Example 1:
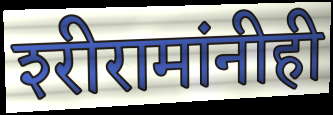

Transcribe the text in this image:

श्रीरामांनीही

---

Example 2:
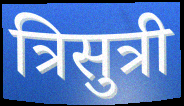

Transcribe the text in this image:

त्रिसुत्री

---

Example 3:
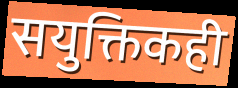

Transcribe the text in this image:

सयुक्तिकही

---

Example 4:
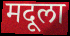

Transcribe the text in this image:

मदूला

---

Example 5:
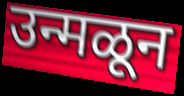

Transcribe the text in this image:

उन्मळून